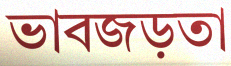
ভাবজড়তা